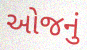
ઓજનું